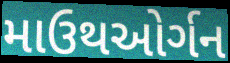
માઉથઓર્ગન